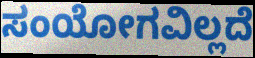
ಸಂಯೋಗವಿಲ್ಲದೆ